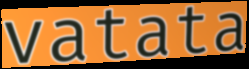
vatata